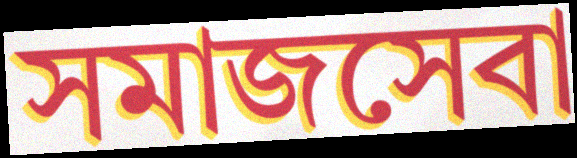
সমাজসেবা